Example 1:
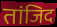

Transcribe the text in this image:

तांजिद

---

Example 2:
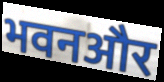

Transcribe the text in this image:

भवनऔर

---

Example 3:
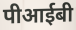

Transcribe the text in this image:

पीआईबी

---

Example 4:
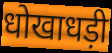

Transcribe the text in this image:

धोखाधड़ी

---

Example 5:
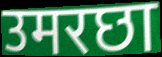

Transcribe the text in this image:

उमरछा